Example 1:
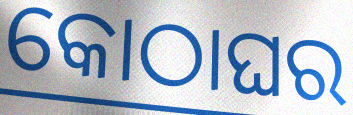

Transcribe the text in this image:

କୋଠାଘର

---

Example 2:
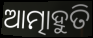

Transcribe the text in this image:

ଆତ୍ମାହୁତି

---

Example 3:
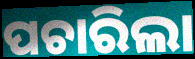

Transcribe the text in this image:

ପଚାରିଲା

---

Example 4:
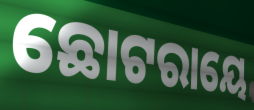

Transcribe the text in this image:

ଛୋଟରାୟେ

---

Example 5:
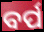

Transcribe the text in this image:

ବର୍ପ